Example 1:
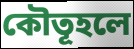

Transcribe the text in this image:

কৌতূহলে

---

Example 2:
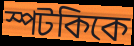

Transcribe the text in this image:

স্পটকিকে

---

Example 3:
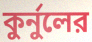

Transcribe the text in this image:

কুর্নুলের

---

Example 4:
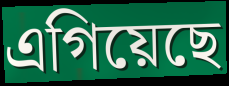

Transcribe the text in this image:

এগিয়েছে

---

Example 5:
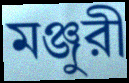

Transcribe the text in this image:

মঞ্জুরী